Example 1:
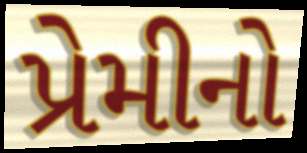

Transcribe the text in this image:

પ્રેમીનો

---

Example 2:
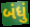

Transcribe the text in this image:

બંધું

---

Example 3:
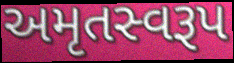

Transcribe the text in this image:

અમૃતસ્વરૂપ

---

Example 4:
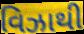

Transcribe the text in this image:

વિઝાથી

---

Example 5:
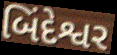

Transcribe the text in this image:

બિંદેશ્વર